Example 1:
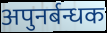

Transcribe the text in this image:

अपुनर्बन्धक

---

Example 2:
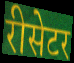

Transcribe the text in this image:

रीसेटर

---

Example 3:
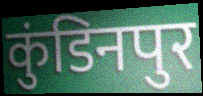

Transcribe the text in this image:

कुंडिनपुर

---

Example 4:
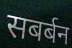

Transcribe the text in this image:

सबर्बन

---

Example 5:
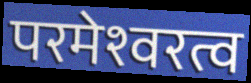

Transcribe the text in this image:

परमेश्वरत्व